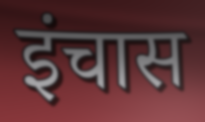
इंचास